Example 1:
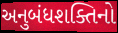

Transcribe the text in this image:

અનુબંધશક્તિનો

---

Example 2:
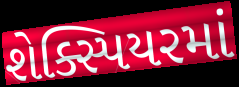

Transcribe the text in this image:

શેક્સ્પિયરમાં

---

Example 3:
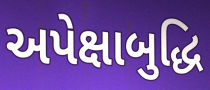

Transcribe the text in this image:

અપેક્ષાબુદ્ધિ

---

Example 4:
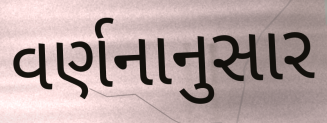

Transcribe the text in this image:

વર્ણનાનુસાર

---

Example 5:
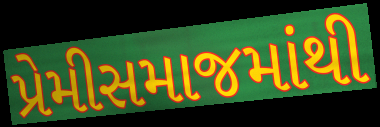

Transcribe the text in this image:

પ્રેમીસમાજમાંથી